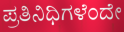
ಪ್ರತಿನಿಧಿಗಳೆಂದೇ